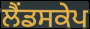
ਲੈਂਡਸਕੇਪ